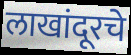
लाखांदूरचे